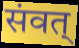
संवत्